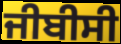
ਜੀਬੀਸੀ